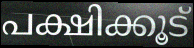
പക്ഷിക്കൂട്